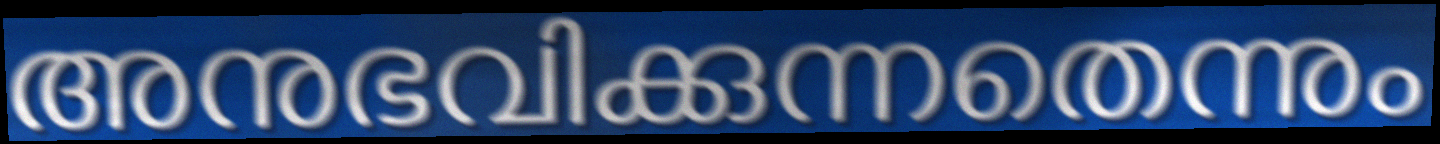
അനുഭവിക്കുന്നതെന്നും